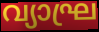
വ്യാഘ്ര